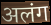
अलंग